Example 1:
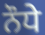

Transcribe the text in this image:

ਨੌਧੇ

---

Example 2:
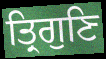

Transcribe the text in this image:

ਤ੍ਰਿਗੁਣਿ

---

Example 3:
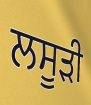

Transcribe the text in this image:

ਲਸੂੜੀ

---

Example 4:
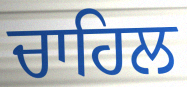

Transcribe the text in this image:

ਚਾਹਿਲ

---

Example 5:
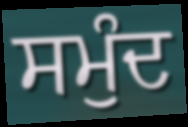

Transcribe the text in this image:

ਸਮੁੰਦ